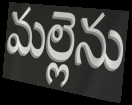
మల్లెను